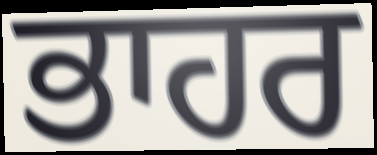
ਭਾਹਰ